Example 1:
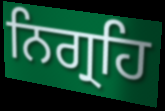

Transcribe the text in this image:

ਨਿਗ੍ਰਹਿ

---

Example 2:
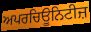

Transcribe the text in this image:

ਅਪਰਚਿਊਨਿਟੀਜ਼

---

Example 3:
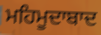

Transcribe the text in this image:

ਮਹਿਮੂਦਾਬਾਦ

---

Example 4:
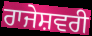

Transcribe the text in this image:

ਰਾਜੇਸ਼ਵਰੀ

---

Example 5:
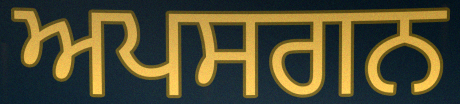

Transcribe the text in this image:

ਅਪਸਗਨ